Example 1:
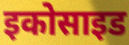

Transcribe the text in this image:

इकोसाइड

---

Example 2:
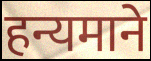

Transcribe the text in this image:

हन्यमाने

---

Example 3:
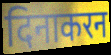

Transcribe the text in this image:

दिनाकरन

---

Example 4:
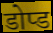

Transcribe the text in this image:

डोप्ड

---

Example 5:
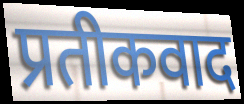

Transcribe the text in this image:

प्रतीकवाद